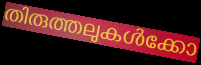
തിരുത്തലുകൾക്കോ